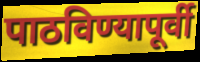
पाठविण्यापूर्वी